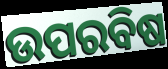
ଉପରବିଷ